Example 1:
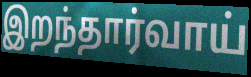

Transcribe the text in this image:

இறந்தார்வாய்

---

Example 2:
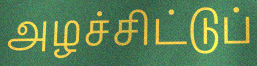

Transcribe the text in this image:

அழச்சிட்டுப்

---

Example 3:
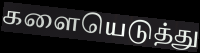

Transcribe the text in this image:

களையெடுத்து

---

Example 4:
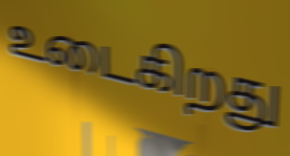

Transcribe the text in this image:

உடைகிறது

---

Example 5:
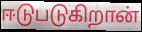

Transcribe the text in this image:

ஈடுபடுகிறான்